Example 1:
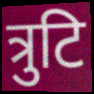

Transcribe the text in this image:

त्रुटि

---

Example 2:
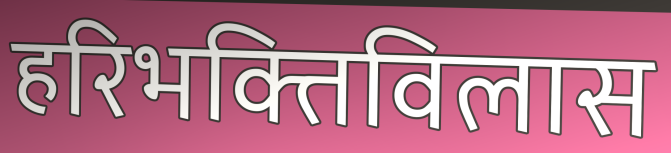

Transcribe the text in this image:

हरिभक्तिविलास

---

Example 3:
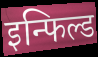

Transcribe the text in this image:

इन्फिल्ड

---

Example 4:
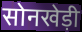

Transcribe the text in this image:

सोनखेड़ी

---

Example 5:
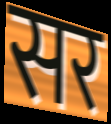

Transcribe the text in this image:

सर